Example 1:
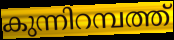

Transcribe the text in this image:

കുന്നിറമ്പത്ത്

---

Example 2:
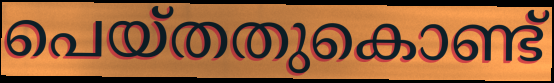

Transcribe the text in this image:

പെയ്തതുകൊണ്ട്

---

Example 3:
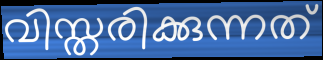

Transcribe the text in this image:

വിസ്തരിക്കുന്നത്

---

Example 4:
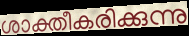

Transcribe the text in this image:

ശാക്തീകരിക്കുന്നു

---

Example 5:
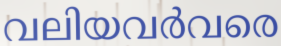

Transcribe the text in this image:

വലിയവർവരെ